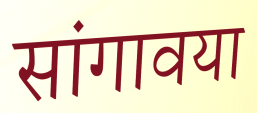
सांगावया